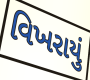
વિખરાયું